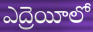
ఎద్రెయీలో